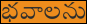
భవాలను